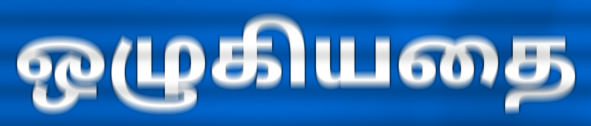
ஒழுகியதை